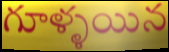
గూళ్ళయిన